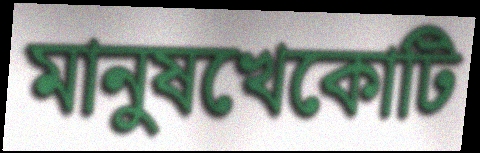
মানুষখেকোটি